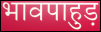
भावपाहुड़